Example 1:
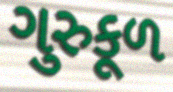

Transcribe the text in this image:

ગુરુકૂળ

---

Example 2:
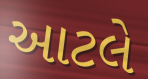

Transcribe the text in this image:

આટલે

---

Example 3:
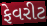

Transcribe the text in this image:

ફેવરીટ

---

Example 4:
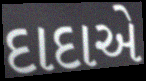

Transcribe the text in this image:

દાદાએ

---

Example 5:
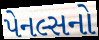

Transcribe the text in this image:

પેનલ્સનો